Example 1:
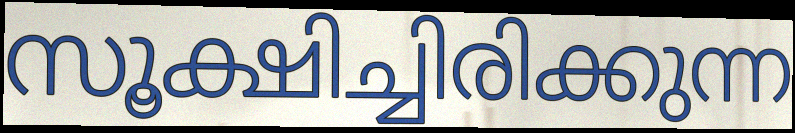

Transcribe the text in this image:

സൂക്ഷിച്ചിരിക്കുന്ന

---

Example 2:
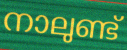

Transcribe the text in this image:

നാലുണ്ട്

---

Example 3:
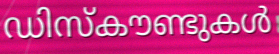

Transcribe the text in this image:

ഡിസ്കൗണ്ടുകൾ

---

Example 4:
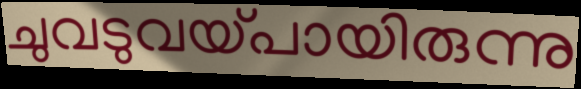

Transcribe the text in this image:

ചുവടുവയ്പായിരുന്നു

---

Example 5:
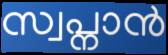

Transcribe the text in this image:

സ്വപ്നാൻ